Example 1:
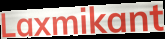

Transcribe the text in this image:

Laxmikant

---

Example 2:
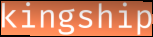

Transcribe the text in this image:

kingship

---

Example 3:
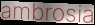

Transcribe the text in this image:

ambrosia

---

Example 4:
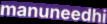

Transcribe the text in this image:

manuneedhi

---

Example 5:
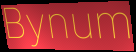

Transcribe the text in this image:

Bynum